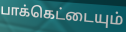
பாக்கெட்டையும்